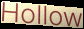
Hollow